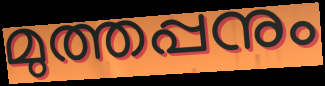
മുത്തപ്പനും